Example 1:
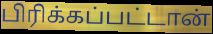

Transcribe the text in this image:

பிரிக்கப்பட்டான்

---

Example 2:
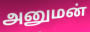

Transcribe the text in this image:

அனுமன்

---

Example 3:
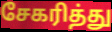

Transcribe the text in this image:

சேகரித்து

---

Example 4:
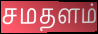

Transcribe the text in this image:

சமதளம்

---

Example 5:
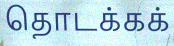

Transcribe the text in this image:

தொடக்கக்